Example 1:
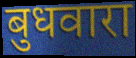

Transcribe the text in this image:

बुधवारा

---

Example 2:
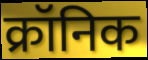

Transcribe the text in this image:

क्रॉनिक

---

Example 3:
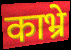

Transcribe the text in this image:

काभ्रे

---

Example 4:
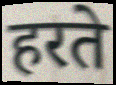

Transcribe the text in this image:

हरते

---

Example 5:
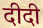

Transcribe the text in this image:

दीदी